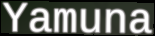
Yamuna